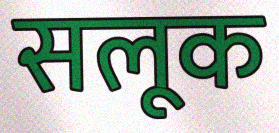
सलूक